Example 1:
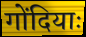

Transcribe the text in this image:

गोंदियाः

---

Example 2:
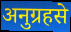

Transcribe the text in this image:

अनुग्रहसे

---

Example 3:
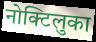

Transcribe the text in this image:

नोक्टिलुका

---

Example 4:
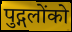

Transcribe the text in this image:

पुद्गलोंको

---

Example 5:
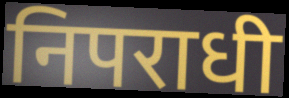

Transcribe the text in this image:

निपराधी